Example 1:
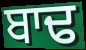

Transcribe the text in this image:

ਬਾਢ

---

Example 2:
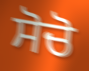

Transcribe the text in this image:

ਸੋਚੋ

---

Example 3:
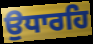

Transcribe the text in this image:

ਉਧਾਰਹਿ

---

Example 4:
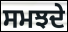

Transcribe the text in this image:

ਸਮਝਦੇ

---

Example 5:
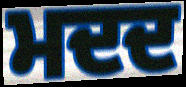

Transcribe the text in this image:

ਮਦਦ